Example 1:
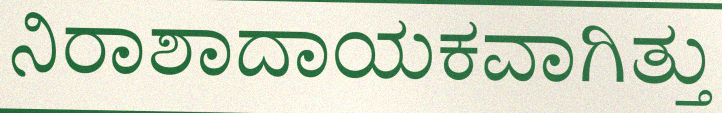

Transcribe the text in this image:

ನಿರಾಶಾದಾಯಕವಾಗಿತ್ತು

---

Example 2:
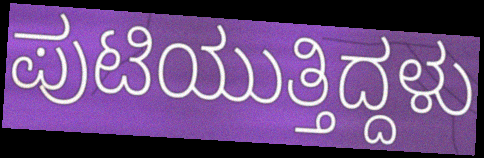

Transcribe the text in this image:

ಪುಟಿಯುತ್ತಿದ್ದಳು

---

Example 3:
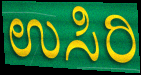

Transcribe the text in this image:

ಉಸಿರಿ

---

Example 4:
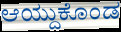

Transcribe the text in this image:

ಆಯ್ದುಕೊಂಡ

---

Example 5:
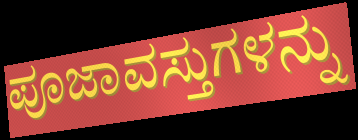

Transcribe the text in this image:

ಪೂಜಾವಸ್ತುಗಳನ್ನು